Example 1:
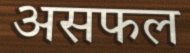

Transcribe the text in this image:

असफल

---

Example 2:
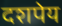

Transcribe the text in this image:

दशपेय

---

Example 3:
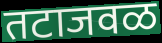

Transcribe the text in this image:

तटाजवळ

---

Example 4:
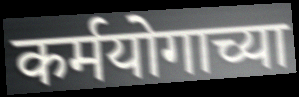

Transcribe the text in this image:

कर्मयोगाच्या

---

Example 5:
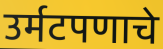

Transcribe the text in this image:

उर्मटपणाचे